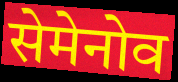
सेमेनोव